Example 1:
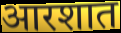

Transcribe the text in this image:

आरशात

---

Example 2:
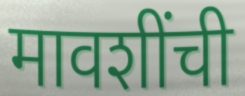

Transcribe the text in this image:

मावशींची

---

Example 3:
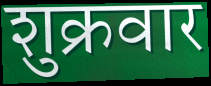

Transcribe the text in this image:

शुक्रवार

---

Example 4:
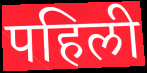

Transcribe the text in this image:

पहिली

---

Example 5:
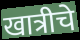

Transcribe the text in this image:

खात्रीचे